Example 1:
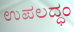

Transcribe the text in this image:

ಉಪಲದ್ಧಂ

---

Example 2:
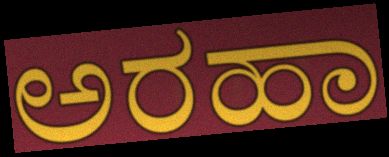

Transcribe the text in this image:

ಅರಹಾ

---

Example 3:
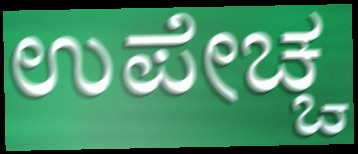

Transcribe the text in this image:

ಉಪೇಚ್ಚ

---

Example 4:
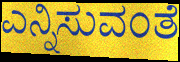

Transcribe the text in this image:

ಎನ್ನಿಸುವಂತೆ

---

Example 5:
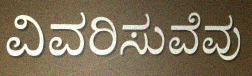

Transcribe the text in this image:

ವಿವರಿಸುವೆವು